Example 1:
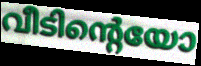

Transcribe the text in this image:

വീടിന്റെയോ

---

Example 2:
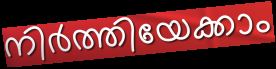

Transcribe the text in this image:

നിർത്തിയേക്കാം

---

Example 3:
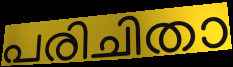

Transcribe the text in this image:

പരിചിതാ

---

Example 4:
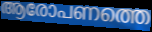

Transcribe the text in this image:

ആരോപണത്തെ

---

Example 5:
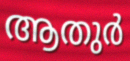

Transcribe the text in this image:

ആതുർ